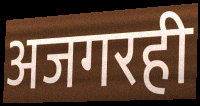
अजगरही